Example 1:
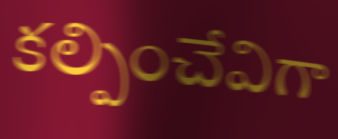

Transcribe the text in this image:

కల్పించేవిగా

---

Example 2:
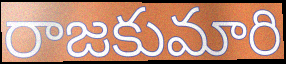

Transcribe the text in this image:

రాజకుమారి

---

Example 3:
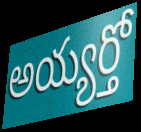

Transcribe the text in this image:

అయ్యర్తో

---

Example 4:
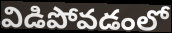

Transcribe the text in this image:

విడిపోవడంలో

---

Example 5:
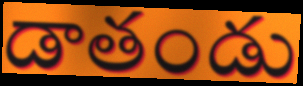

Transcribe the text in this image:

డాతండు